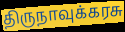
திருநாவுக்கரசு